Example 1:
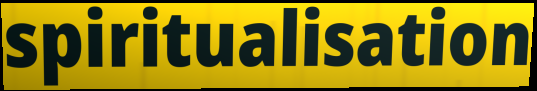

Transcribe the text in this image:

spiritualisation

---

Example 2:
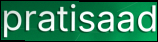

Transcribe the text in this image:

pratisaad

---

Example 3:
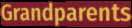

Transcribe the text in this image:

Grandparents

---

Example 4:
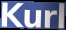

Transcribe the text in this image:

Kurl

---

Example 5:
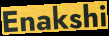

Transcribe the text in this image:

Enakshi